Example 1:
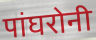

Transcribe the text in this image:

पांघरोनी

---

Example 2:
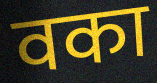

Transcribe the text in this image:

वका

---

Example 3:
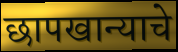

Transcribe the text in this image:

छापखान्याचे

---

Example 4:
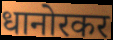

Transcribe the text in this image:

धानोरकर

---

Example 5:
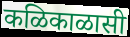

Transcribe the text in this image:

कळिकाळासी